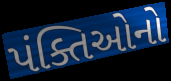
પંક્તિઓનો